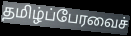
தமிழ்ப்பேரவைச்